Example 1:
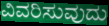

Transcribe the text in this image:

ವಿವರಿಸುವುದು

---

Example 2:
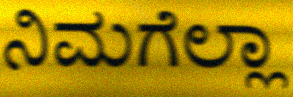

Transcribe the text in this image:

ನಿಮಗೆಲ್ಲಾ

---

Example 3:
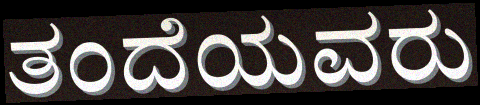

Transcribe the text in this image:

ತಂದೆಯವರು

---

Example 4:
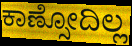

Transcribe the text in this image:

ಕಾಣ್ಸೋದಿಲ್ಲ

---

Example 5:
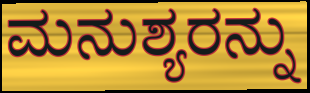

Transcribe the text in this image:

ಮನುಶ್ಯರನ್ನು